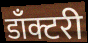
डाँक्टरी